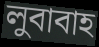
লুবাবাহ